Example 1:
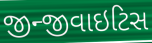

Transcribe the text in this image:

જીન્જીવાઇટિસ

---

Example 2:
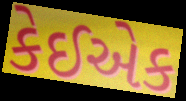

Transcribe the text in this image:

કેઈએક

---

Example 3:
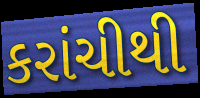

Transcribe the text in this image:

કરાંચીથી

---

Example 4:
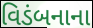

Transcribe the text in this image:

વિડંબનાના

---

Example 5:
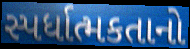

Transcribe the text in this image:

સ્પર્ધાત્મકતાનો